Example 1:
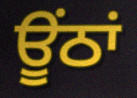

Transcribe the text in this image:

ਊਂਠਾਂ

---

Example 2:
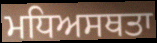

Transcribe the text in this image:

ਮਧਿਅਸਥਤਾ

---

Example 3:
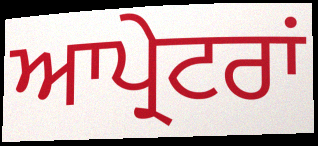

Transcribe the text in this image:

ਆਪ੍ਰੇਟਰਾਂ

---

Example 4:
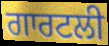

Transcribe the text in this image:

ਗਾਰਟਲੀ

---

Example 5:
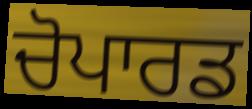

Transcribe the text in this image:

ਚੋਪਾਰਡ